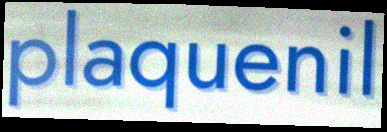
plaquenil